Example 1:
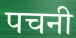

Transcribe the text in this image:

पचनी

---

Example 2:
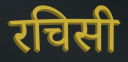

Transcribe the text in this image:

रचिसी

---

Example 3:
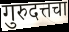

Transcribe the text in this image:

गुरुदत्तचा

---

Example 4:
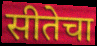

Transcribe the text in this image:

सीतेचा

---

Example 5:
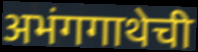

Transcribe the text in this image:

अभंगगाथेची